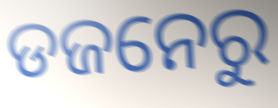
ଡଜନେରୁ